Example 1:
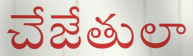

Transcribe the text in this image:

చేజేతులా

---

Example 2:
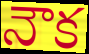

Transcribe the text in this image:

నౌక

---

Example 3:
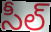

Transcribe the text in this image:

సీల్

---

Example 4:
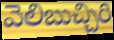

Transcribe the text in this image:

వెలిబుచ్చిరి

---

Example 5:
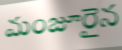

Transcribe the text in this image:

మంజూరైన